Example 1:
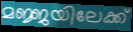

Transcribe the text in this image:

മജ്ജയിലേക്ക്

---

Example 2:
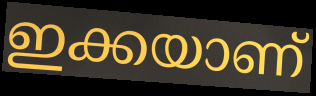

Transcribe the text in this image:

ഇക്കയാണ്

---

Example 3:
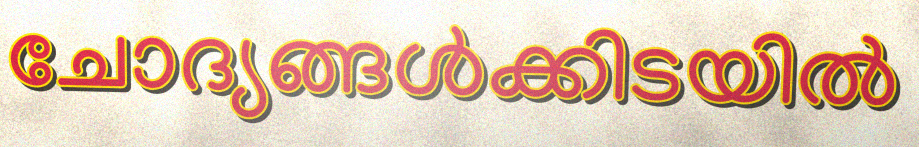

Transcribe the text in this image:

ചോദ്യങ്ങൾക്കിടയിൽ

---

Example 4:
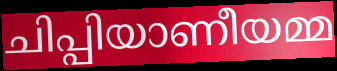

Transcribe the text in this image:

ചിപ്പിയാണീയമ്മ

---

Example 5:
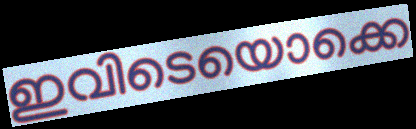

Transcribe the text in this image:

ഇവിടെയൊക്കെ